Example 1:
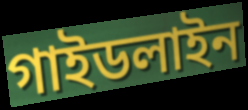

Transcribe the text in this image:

গাইডলাইন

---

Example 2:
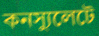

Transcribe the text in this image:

কনস্যুলেটে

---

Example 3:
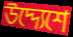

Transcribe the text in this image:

উদ্দ্যেশে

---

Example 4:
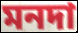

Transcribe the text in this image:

মনদা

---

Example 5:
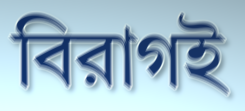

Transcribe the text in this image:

বিরাগই